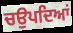
ਚਉਪਦਿਆਂ